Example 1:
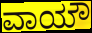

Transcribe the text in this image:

ವಾಯೌ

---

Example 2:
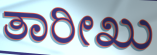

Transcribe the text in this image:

ತಾರೀಖು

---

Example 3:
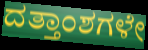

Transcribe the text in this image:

ದತ್ತಾಂಶಗಳೇ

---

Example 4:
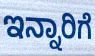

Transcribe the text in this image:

ಇನ್ನಾರಿಗೆ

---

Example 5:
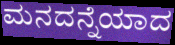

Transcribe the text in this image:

ಮನದನ್ನೆಯಾದ